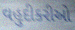
વહુદીકરીઓ